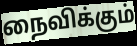
நைவிக்கும்